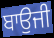
ਬਾਉਜੀ